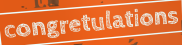
congretulations